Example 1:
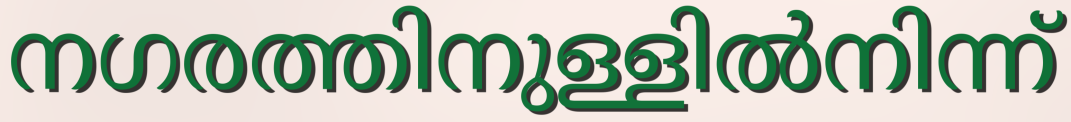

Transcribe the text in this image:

നഗരത്തിനുള്ളിൽനിന്ന്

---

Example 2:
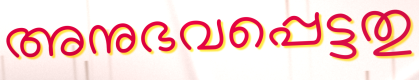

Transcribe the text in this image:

അനുഭവപ്പെട്ടതു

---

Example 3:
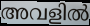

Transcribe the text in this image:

അവളിൽ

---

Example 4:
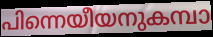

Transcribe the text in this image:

പിന്നെയീയനുകമ്പാ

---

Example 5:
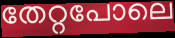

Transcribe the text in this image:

തേറ്റപോലെ